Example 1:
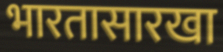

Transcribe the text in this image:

भारतासारखा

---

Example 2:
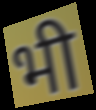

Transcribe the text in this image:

भी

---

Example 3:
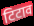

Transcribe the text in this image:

टिटाव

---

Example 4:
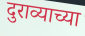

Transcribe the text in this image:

दुराव्याच्या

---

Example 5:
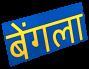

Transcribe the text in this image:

बेंगला